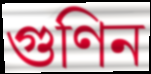
গুণিন